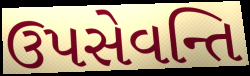
ઉપસેવન્તિ